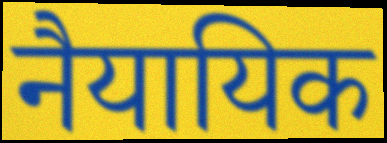
नैयायिक